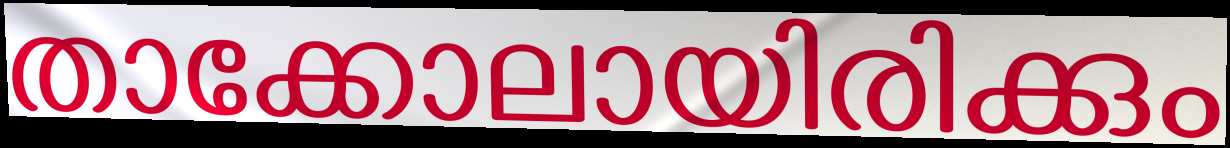
താക്കോലായിരിക്കും